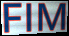
FIM